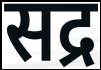
सद्र